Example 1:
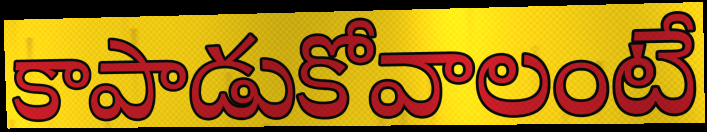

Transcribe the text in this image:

కాపాడుకోవాలంటే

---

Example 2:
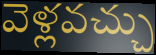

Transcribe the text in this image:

వెళ్లవచ్చు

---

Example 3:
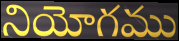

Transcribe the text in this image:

నియోగము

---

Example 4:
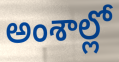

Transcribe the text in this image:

అంశాల్లో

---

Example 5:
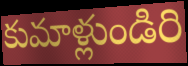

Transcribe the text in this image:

కుమాళ్లుండిరి